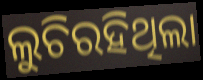
ଲୁଚିରହିଥିଲା